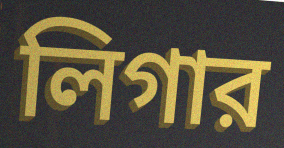
লিগার